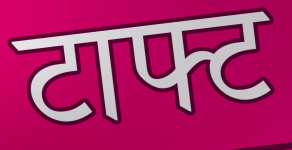
टाफ्ट